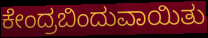
ಕೇಂದ್ರಬಿಂದುವಾಯಿತು